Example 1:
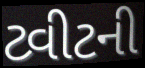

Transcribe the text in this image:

ટ્વીટની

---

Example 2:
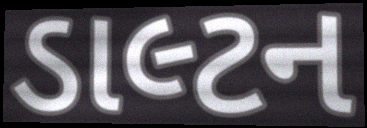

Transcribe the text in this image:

ડાલ્ટન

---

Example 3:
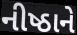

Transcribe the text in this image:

નીષ્ઠાને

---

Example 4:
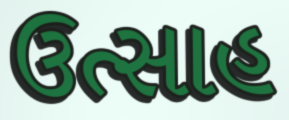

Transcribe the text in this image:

ઉત્સાહ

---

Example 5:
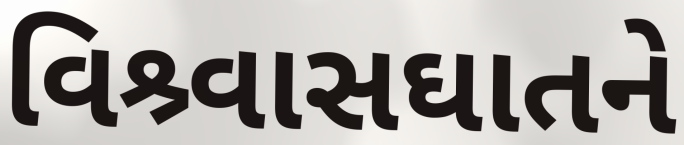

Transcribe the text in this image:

વિશ્ર્વાસઘાતને